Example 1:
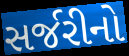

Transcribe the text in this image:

સર્જરીનો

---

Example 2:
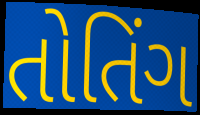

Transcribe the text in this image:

તોતિંગ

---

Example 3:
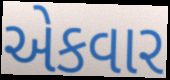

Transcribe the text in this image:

એકવાર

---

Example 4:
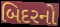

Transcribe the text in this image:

બિદરનો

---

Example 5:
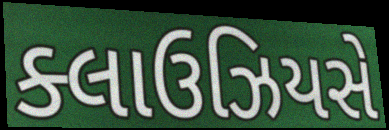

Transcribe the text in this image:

ક્લાઉઝિયસે